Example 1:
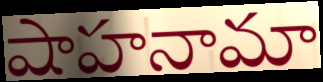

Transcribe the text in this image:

షాహనామా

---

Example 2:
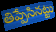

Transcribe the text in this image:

తిప్పేసినట్టు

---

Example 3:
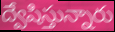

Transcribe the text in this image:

ద్వేషిస్తున్నారు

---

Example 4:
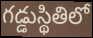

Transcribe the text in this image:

గడ్డుస్థితిలో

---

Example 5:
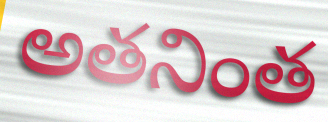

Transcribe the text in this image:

అతనింత